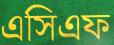
এসিএফ